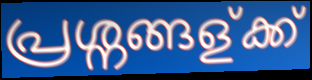
പ്രശ്നങ്ങള്ക്ക്